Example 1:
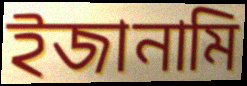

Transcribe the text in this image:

ইজানামি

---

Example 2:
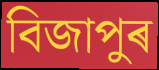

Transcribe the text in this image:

বিজাপুৰ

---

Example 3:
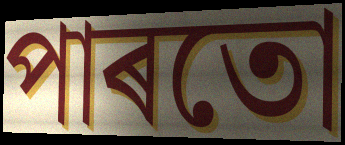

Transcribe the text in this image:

পাৰতো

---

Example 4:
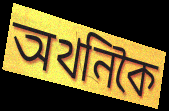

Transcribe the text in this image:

অথনিকৈ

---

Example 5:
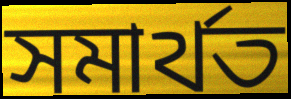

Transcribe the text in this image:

সমাৰ্থত